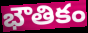
భౌతికం